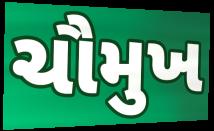
ચૌમુખ